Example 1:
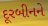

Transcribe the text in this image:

દૂરબીનને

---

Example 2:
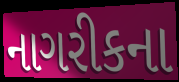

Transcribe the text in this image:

નાગરીકના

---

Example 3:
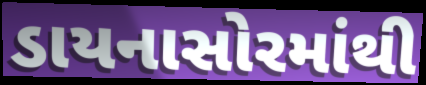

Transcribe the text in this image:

ડાયનાસોરમાંથી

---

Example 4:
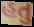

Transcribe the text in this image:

હતુ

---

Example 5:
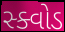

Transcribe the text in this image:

સ્ક્વોડ